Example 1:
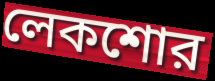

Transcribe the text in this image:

লেকশোর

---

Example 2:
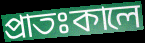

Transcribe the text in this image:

প্রাতঃকালে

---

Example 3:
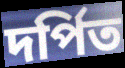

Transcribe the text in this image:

দর্পিত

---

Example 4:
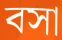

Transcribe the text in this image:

বসা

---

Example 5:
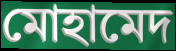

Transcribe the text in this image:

মোহামেদ